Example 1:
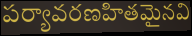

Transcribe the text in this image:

పర్యావరణహితమైనవి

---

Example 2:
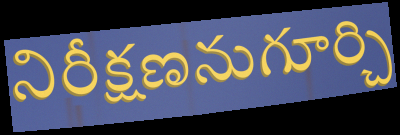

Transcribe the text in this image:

నిరీక్షణనుగూర్చి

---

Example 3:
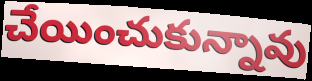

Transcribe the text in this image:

చేయించుకున్నావు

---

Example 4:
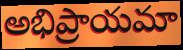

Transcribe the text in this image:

అభిప్రాయమా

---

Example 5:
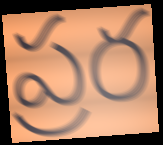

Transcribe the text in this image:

ప్రర